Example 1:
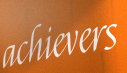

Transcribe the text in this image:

achievers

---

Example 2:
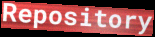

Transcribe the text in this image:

Repository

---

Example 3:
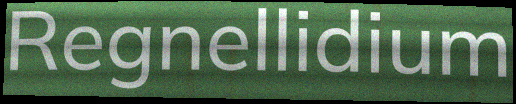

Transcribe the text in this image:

Regnellidium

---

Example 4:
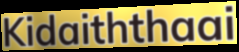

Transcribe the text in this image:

Kidaiththaai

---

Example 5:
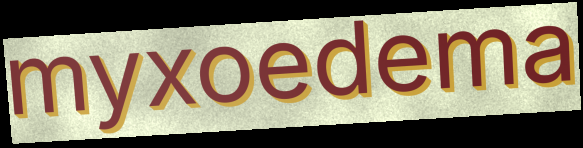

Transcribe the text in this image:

myxoedema